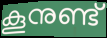
കൂനുണ്ട്